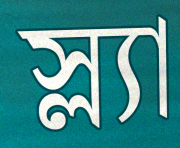
স্ল্যা